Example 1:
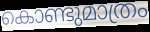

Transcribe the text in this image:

കൊണ്ടുമാത്രം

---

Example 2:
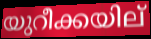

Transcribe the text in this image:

യുറീക്കയില്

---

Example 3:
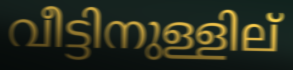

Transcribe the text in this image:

വീട്ടിനുള്ളില്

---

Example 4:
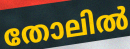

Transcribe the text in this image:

തോലിൽ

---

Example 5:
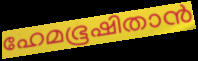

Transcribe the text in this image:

ഹേമഭൂഷിതാൻ